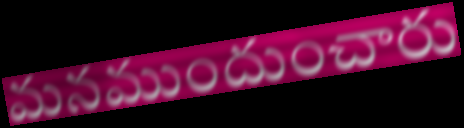
మనముందుంచారు